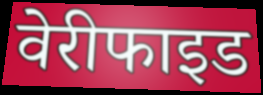
वेरीफाइड